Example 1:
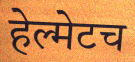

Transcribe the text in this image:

हेल्मेटच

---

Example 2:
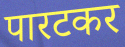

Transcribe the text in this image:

पारटकर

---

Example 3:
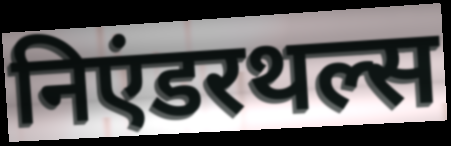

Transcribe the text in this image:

निएंडरथल्स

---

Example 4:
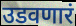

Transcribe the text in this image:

उडवणारं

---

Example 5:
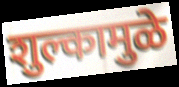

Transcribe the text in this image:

शुल्कामुळे